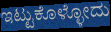
ಇಟ್ಟುಕೊಳ್ಳೋದು